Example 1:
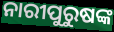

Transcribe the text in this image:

ନାରୀପୁରୁଷଙ୍କ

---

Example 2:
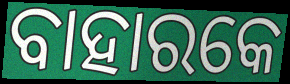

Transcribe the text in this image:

ବାହାରକେ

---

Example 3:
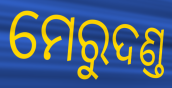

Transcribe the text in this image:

ମେରୁଦଣ୍ଡ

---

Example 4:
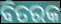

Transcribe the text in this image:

ବିତରକ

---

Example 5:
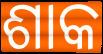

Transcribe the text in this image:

ଶାକ